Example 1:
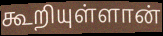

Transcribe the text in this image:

கூறியுள்ளான்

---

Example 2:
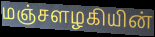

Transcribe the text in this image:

மஞ்சளழகியின்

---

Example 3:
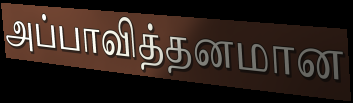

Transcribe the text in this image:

அப்பாவித்தனமான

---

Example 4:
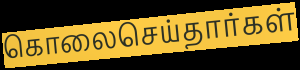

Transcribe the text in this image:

கொலைசெய்தார்கள்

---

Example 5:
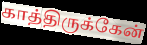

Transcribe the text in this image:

காத்திருக்கேன்